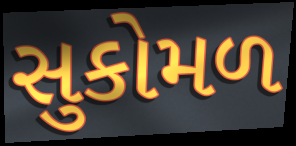
સુકોમળ